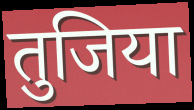
तुजिया